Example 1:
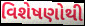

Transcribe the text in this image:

વિશેષણોથી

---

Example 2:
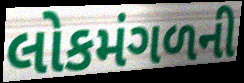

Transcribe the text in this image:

લોકમંગળની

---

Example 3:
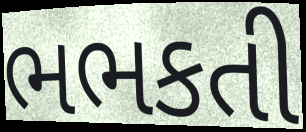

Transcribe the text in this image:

ભભકતી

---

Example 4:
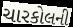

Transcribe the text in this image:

ચારકોલની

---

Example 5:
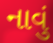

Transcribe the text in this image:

નાવું